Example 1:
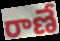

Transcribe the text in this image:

రాణే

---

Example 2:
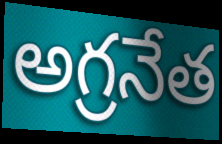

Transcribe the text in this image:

అగ్రనేత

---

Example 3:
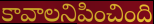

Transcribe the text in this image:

కావాలనిపించింది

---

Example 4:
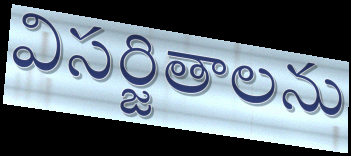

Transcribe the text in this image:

విసర్జితాలను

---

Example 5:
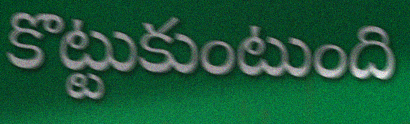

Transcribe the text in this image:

కొట్టుకుంటుంది